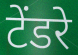
टेंडरे